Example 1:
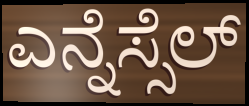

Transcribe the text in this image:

ಎನ್ನೆಸ್ಸೆಲ್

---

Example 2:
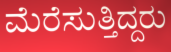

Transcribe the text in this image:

ಮೆರೆಸುತ್ತಿದ್ದರು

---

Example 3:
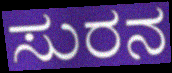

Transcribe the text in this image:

ಸುರನ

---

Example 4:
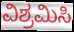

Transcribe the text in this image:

ವಿಶ್ರಮಿಸಿ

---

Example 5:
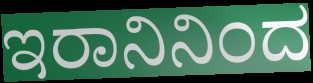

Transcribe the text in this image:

ಇರಾನಿನಿಂದ